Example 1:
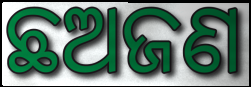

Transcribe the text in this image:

ଛଅଜଣ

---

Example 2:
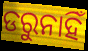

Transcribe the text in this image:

ଡରୁନାହିଁ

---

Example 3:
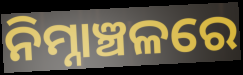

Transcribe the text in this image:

ନିମ୍ନାଞ୍ଚଳରେ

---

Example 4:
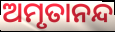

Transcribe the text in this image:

ଅମୃତାନନ୍ଦ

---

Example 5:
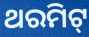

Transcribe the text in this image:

ଥରମିଟ୍